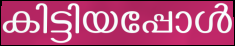
കിട്ടിയപ്പോൾ